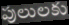
పులులకు